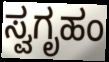
ಸ್ವಗೃಹಂ